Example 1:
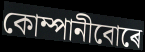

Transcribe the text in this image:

কোম্পানীবোৰে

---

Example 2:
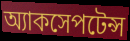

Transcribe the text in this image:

অ্যাকসেপটেন্স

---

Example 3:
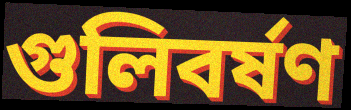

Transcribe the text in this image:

গুলিবৰ্ষণ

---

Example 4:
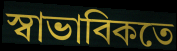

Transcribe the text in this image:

স্বাভাবিকতে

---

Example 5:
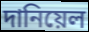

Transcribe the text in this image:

দানিয়েল